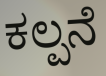
ಕಲ್ಪನೆ